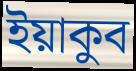
ইয়াকুব